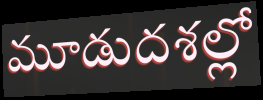
మూడుదశల్లో